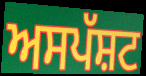
ਅਸਪੱਸ਼ਟ